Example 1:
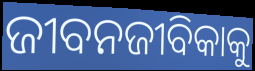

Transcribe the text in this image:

ଜୀବନଜୀବିକାକୁ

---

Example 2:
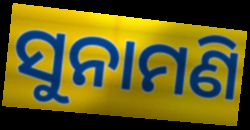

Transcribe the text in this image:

ସୁନାମଣି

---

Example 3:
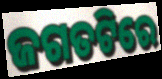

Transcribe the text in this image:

ଜଗତଟିରେ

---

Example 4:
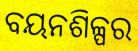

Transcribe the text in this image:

ବୟନଶିଳ୍ପର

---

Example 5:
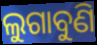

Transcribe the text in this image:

ଲୁଗାବୁଣି